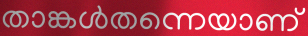
താങ്കൾതന്നെയാണ്